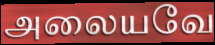
அலையவே